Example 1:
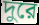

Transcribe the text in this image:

দুরে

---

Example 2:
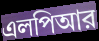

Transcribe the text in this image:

এলপিআর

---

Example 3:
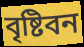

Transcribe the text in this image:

বৃষ্টিবন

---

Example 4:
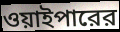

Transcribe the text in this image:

ওয়াইপারের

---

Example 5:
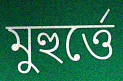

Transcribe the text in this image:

মুহুর্ত্তে